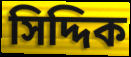
সিদ্দিক